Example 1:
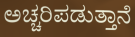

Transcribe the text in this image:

ಅಚ್ಚರಿಪಡುತ್ತಾನೆ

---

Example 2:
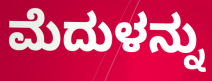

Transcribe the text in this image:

ಮೆದುಳನ್ನು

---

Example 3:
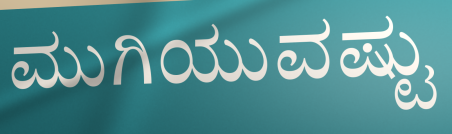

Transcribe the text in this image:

ಮುಗಿಯುವಷ್ಟು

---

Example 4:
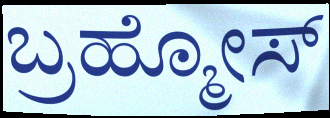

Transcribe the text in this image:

ಬ್ರಹ್ಮೋಸ್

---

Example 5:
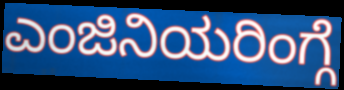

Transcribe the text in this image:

ಎಂಜಿನಿಯರಿಂಗ್ಗೆ